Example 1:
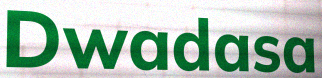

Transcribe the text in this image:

Dwadasa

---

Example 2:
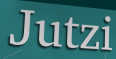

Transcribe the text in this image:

Jutzi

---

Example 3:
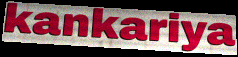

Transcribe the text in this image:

kankariya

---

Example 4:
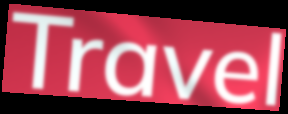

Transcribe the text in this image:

Travel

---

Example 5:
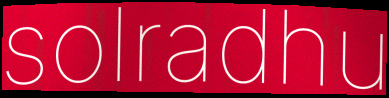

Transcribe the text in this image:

solradhu